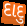
દાદુ